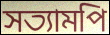
সত্যামপি